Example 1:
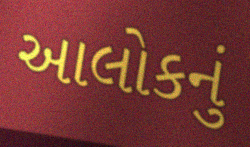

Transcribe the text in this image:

આલોકનું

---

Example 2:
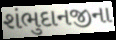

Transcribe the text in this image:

શંભુદાનજીના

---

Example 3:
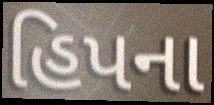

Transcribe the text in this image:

હિપના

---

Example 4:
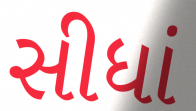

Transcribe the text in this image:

સીધાં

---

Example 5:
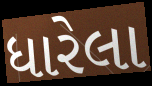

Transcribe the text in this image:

ધારેલા